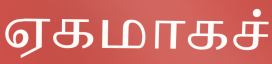
ஏகமாகச்